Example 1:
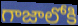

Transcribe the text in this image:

గాజాలోకి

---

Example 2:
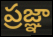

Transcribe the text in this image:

ప్రజ్ఞా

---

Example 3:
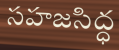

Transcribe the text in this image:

సహజసిద్ధ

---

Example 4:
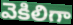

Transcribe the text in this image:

వెకిలిగా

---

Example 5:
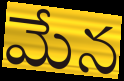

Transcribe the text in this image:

మేన